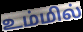
உம்மில்